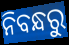
ନିବନ୍ଧରୁ